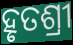
ହୃତଶ୍ରୀ